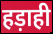
हड़ाही